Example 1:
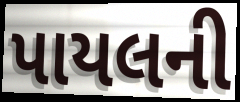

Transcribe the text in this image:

પાયલની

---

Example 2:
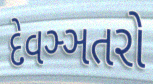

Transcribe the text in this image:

દેવઞ્ઞતરો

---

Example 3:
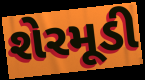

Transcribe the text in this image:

શેરમૂડી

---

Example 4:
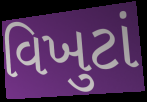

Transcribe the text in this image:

વિખુટાં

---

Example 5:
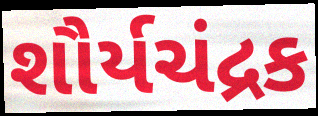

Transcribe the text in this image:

શૌર્યચંદ્રક